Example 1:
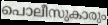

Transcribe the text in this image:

പൊലീസുകാരും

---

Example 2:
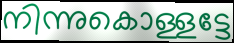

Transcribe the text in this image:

നിന്നുകൊള്ളട്ടേ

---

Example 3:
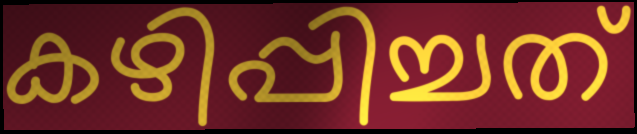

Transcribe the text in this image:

കഴിപ്പിച്ചത്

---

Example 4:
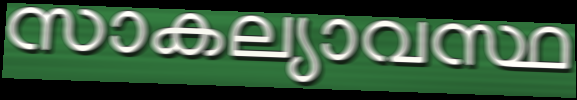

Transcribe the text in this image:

സാകല്യാവസ്ഥ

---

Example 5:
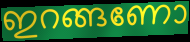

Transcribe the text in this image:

ഇറങ്ങണോ